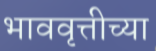
भाववृत्तीच्या